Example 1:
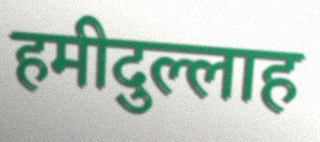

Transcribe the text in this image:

हमीदुल्लाह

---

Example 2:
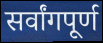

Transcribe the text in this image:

सर्वांगपूर्ण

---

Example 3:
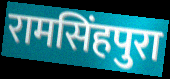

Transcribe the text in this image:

रामसिंहपुरा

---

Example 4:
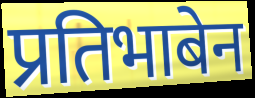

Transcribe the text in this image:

प्रतिभाबेन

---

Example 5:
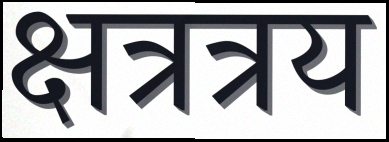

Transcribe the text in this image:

क्षत्रत्रय